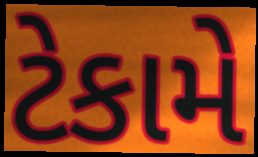
ટેકામે